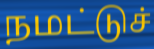
நமட்டுச்